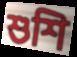
শুশি